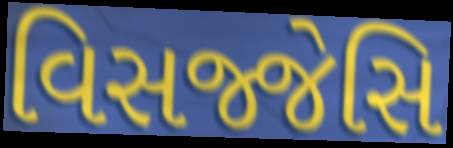
વિસજ્જેસિ